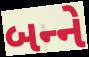
બન્‍ને